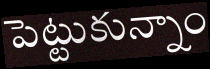
పెట్టుకున్నాం